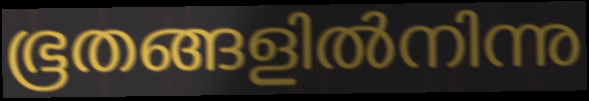
ഭൂതങ്ങളിൽനിന്നു